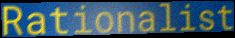
Rationalist